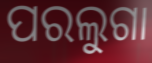
ପରଲୁଗା